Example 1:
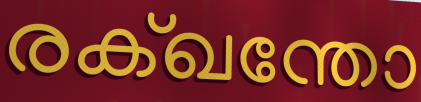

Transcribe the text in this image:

രക്ഖന്തോ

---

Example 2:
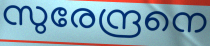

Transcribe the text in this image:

സുരേന്ദ്രനെ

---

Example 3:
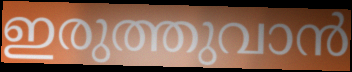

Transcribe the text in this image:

ഇരുത്തുവാൻ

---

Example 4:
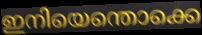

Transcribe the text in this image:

ഇനിയെന്തൊക്കെ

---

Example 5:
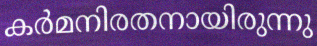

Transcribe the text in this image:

കർമനിരതനായിരുന്നു